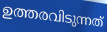
ഉത്തരവിടുന്നത്